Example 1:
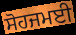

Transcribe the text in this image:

ਸੋਹਜਮਈ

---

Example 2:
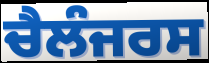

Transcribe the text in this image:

ਚੈਲੰਜਰਸ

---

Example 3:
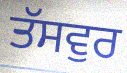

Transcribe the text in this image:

ਤੱਸਵੁਰ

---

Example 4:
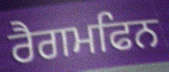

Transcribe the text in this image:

ਰੈਗਮਫਿਨ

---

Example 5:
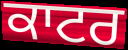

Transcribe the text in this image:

ਕਾਟਰ